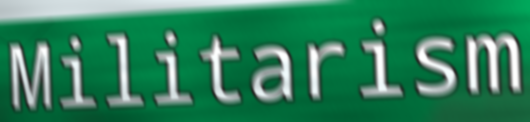
Militarism